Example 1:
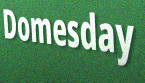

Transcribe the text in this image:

Domesday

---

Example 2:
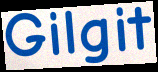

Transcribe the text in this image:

Gilgit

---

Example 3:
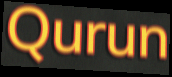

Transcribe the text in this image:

Qurun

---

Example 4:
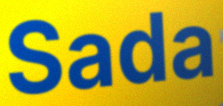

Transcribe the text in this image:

Sada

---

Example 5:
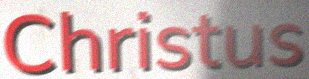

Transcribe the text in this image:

Christus